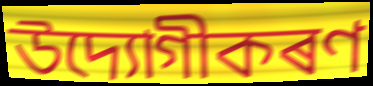
উদ্যোগীকৰণ